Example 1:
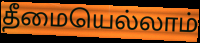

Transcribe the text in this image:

தீமையெல்லாம்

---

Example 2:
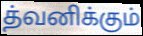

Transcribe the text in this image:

த்வனிக்கும்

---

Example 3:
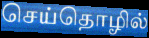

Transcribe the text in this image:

செய்தொழில்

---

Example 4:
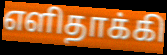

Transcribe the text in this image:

எளிதாக்கி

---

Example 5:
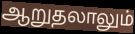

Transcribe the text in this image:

ஆறுதலாலும்